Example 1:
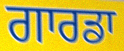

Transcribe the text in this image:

ਗਾਰਡਾ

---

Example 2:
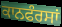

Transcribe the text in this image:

ਕਾਨਫੰਰਸਾਂ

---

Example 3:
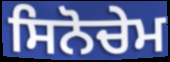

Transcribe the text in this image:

ਸਿਨੋਚੇਮ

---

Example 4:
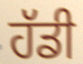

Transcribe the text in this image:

ਹੱਡੀ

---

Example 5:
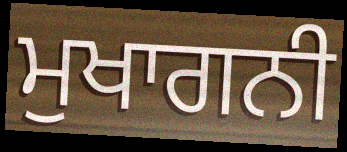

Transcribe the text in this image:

ਮੁਖਾਗਨੀ